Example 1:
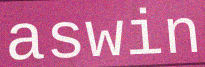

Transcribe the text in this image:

aswin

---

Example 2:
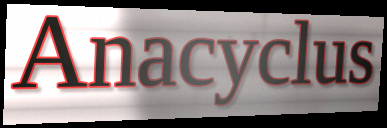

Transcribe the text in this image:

Anacyclus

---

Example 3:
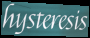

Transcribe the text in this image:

hysteresis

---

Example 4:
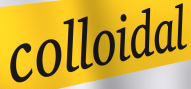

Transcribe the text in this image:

colloidal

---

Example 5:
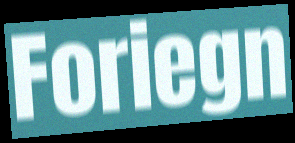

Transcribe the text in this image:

Foriegn